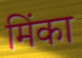
मिंका